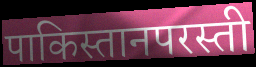
पाकिस्तानपरस्ती